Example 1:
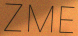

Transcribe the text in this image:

ZME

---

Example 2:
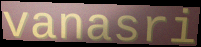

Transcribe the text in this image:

vanasri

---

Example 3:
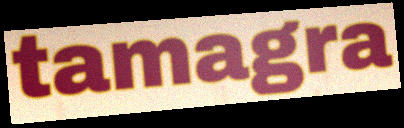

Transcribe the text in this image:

tamagra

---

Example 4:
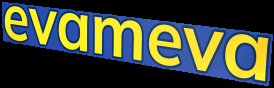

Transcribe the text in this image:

evameva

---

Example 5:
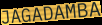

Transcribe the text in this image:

JAGADAMBA